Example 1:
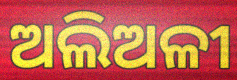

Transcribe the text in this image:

ଅଲିଅଳୀ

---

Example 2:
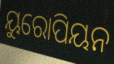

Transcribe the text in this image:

ୟୁରୋପିୟନ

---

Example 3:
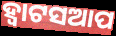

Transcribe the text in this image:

ହ୍ୱାଟସଆପ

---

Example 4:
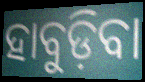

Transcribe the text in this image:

ହାବୁଡ଼ିବା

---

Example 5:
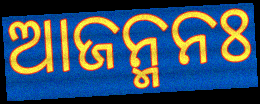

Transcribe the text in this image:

ଆଜନ୍ମନଃ